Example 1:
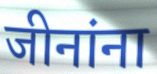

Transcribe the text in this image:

जीनांना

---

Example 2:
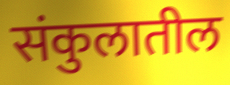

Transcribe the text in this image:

संकुलातील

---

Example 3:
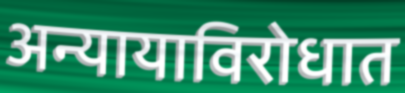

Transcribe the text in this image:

अन्यायाविरोधात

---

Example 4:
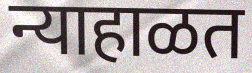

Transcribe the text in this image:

न्याहाळत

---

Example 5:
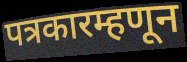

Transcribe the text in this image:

पत्रकारम्हणून